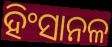
ହିଂସାନଳ